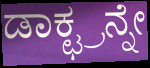
ಡಾಕ್ಟ್ರನ್ನೇ